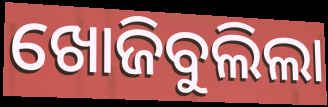
ଖୋଜିବୁଲିଲା